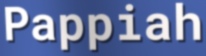
Pappiah